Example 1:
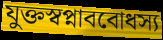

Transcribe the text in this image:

যুক্তস্বপ্নাববোধস্য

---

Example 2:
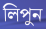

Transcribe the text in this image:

লিপুন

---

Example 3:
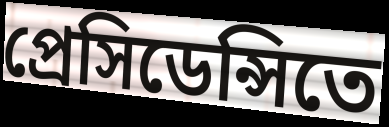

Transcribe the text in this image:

প্রেসিডেন্সিতে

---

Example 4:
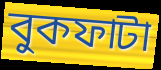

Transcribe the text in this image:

বুকফাটা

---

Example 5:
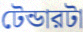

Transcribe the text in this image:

টেন্ডারটা